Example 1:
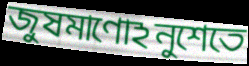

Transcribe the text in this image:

জুষমাণোঽনুশেতে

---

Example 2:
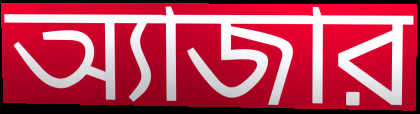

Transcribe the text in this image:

অ্যাজার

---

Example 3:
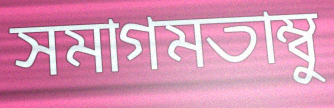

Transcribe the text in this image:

সমাগমতাম্বু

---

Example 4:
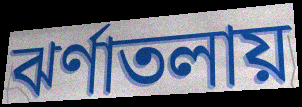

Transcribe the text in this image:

ঝর্ণাতলায়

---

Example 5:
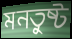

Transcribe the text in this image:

মনতুষ্ট